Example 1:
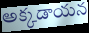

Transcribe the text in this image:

అక్కడాయన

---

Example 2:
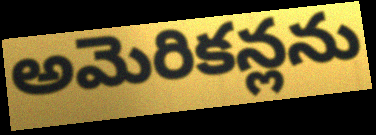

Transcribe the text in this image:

అమెరికన్లను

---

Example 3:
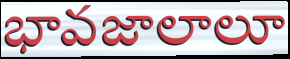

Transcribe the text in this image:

భావజాలాలూ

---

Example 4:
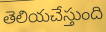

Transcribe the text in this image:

తెలియచేస్తుంది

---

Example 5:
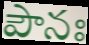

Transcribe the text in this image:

పౌనః